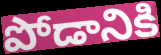
పోడానికి